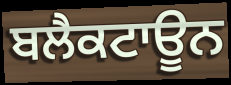
ਬਲੈਕਟਾਊਨ